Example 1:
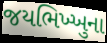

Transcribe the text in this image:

જયભિખ્ખુના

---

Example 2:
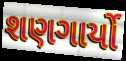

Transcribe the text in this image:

શણગાર્યો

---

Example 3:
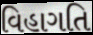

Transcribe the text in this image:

વિહાગતિ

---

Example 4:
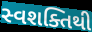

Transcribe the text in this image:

સ્વશક્તિથી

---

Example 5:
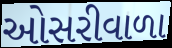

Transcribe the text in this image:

ઓસરીવાળા